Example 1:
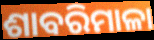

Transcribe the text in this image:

ଶାବରିମାଳା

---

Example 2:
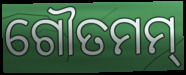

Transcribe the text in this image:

ଗୌତମମ୍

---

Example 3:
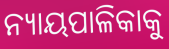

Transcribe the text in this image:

ନ୍ୟାୟପାଳିକାକୁ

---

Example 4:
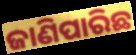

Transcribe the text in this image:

ଜାଣିପାରିଛ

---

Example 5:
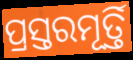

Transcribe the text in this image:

ପ୍ରସ୍ତରମୂର୍ତ୍ତି